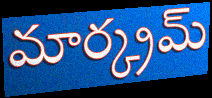
మార్క్రమ్